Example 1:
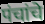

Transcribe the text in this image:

पंचांचे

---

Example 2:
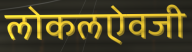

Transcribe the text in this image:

लोकलऐवजी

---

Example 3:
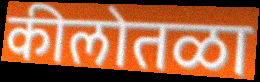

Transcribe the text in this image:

कीलोतळा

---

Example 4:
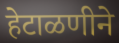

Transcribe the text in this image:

हेटाळणीने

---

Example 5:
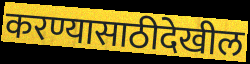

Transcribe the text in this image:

करण्यासाठीदेखील